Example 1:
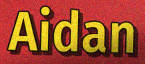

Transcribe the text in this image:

Aidan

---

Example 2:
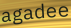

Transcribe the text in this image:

agadee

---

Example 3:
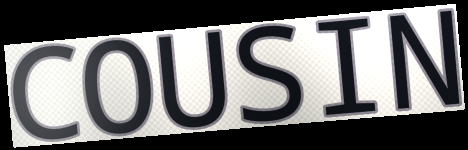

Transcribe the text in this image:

COUSIN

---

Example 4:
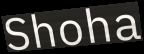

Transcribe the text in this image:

Shoha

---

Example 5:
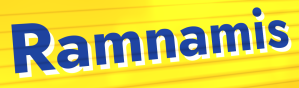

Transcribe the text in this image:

Ramnamis